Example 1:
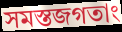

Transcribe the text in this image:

সমস্তজগতাং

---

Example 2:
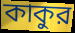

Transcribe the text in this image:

কাকুর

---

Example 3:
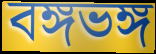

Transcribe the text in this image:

বঙ্গভঙ্গ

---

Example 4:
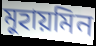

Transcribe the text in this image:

মুহায়মিন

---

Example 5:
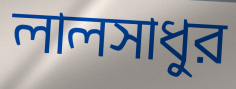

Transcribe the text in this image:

লালসাধুর